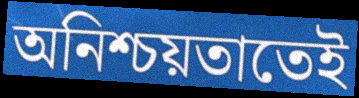
অনিশ্চয়তাতেই